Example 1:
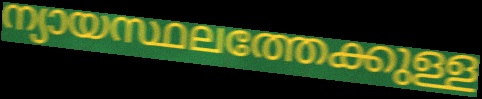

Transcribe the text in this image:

ന്യായസ്ഥലത്തേക്കുള്ള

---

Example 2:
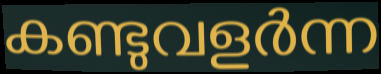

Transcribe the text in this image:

കണ്ടുവളർന്ന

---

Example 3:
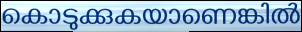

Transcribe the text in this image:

കൊടുക്കുകയാണെങ്കിൽ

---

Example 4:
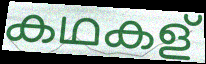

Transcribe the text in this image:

കഥകള്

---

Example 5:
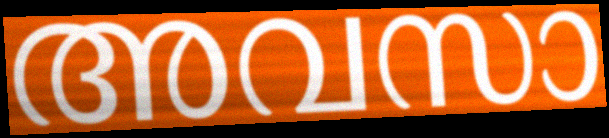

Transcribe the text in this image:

അവസാ